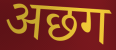
अछग